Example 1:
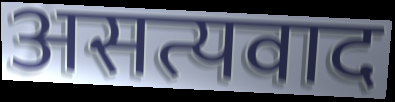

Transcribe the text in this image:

असत्यवाद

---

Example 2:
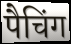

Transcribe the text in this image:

पैचिंग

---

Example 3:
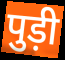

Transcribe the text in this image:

पुड़ी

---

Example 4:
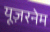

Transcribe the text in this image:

यूज़रनेम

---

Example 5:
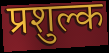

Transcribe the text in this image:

प्रशुल्क